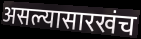
असल्यासारखंच